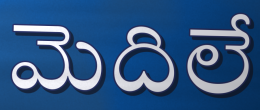
మెదిలే